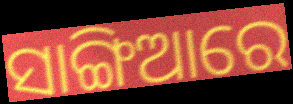
ସାଙ୍ଗିଆରେ